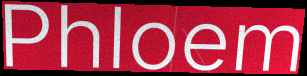
Phloem